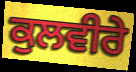
ਕੁਲਵੀਰੇ